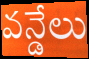
వన్డేలు